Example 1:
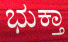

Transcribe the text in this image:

ಭುಕ್ತಾ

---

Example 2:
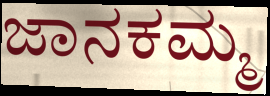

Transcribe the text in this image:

ಜಾನಕಮ್ಮ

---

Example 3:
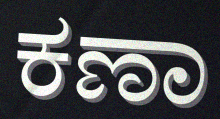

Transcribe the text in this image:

ಕಣಾ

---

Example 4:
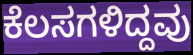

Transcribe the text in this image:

ಕೆಲಸಗಳಿದ್ದವು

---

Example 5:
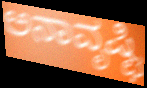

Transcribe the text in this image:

ಅನಾವೃಷ್ಟಿ